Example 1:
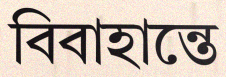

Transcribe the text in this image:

বিবাহান্তে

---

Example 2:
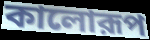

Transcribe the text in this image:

কালোরূপ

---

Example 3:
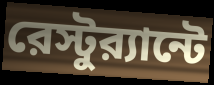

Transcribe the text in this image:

রেস্টুর‍্যান্টে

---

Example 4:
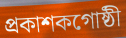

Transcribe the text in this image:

প্রকাশকগোষ্ঠী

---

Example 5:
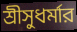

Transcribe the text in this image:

শ্রীসুধর্মার